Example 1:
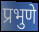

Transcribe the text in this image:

प्रभुणे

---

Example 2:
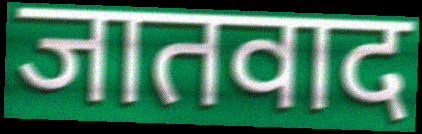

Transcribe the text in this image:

जातवाद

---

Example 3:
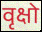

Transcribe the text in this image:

वृक्षो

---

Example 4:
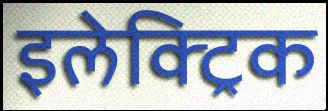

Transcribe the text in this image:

इलेक्ट्रिक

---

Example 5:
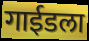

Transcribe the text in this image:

गाईडला